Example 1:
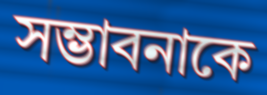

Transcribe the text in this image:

সম্ভাবনাকে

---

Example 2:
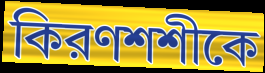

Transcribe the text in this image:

কিরণশশীকে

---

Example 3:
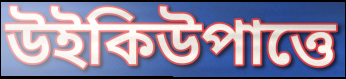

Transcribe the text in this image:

উইকিউপাত্তে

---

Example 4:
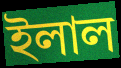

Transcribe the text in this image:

ইলাল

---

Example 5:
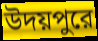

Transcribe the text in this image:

উদয়পুরে